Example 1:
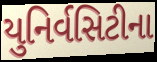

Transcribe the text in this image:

યુનિર્વસિટીના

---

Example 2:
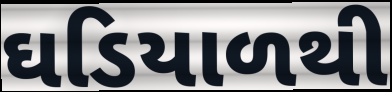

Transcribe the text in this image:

ઘડિયાળથી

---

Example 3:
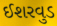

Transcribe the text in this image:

ઈશરવુડ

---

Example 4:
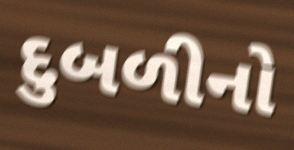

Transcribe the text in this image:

દુબળીનો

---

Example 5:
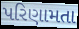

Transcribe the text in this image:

પરિણામતા